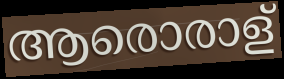
ആരൊരാള്